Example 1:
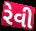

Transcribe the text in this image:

રેવી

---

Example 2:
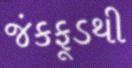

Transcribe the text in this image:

જંકફૂડથી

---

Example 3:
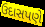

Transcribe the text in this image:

ઉદાસપણે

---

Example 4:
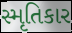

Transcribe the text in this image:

સ્મૃતિકાર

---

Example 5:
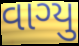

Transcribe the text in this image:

વાગ્યુ